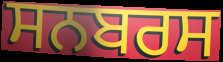
ਸਨਬਰਸ